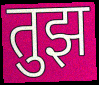
तुझ